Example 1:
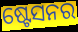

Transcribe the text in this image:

ଷ୍ଟେସନର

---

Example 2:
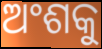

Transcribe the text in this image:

ଅଂଶକୁ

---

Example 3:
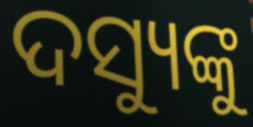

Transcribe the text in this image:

ଦସ୍ୟୁଙ୍କୁ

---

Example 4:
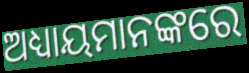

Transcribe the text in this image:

ଅଧ୍ୟାୟମାନଙ୍କରେ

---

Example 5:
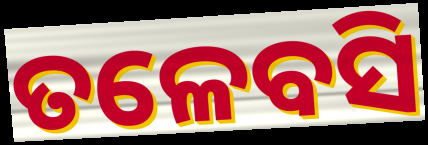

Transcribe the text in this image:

ତଳେବସି